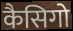
कैसिगो